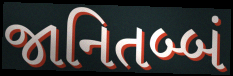
જાનિતબ્બં